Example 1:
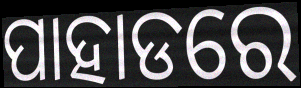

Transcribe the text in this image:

ପାହାଡରେ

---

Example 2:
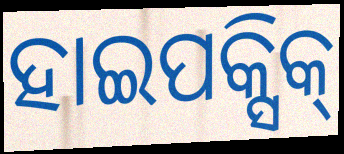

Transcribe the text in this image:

ହାଇପକ୍ସିକ୍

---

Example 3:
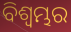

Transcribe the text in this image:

ବିଶ୍ବମ୍ଭର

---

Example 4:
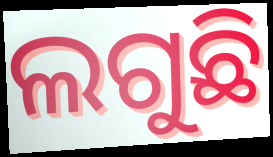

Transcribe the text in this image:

ଲଗୁଛି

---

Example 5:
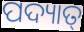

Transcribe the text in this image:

ପଦ୍ୟାତ୍